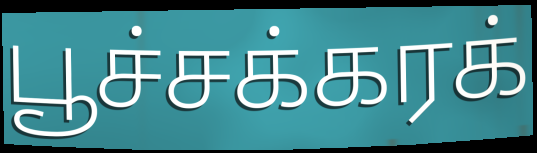
பூச்சக்கரக்